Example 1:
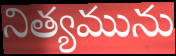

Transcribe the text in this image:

నిత్యమును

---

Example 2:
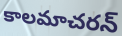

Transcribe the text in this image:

కాలమాచరన్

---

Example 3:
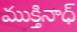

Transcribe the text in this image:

ముక్తినాధ్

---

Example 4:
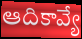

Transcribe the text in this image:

ఆదికావ్యే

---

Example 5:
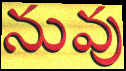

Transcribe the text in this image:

నువు